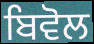
ਬਿਵੋਲ